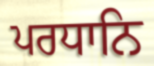
ਪਰਧਾਨਿ